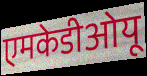
एमकेडीओयू